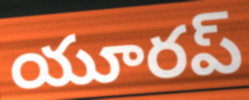
యూరప్